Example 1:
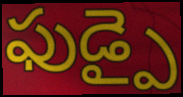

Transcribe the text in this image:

ఫుడ్పై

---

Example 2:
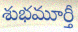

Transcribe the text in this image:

శుభమూర్తీ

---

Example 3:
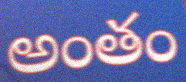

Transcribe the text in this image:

అంతం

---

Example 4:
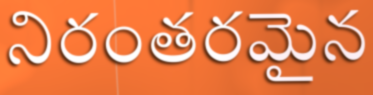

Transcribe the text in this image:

నిరంతరమైన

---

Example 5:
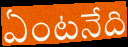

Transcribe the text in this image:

ఏంటనేది